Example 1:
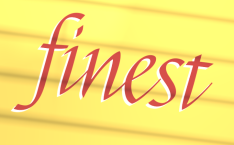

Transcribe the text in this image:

finest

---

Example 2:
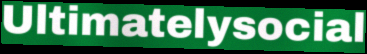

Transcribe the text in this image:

Ultimatelysocial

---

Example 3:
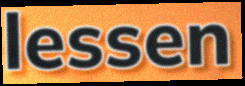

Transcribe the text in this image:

lessen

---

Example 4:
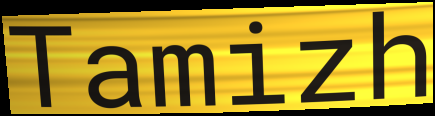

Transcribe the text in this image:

Tamizh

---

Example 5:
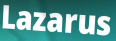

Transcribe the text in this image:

Lazarus